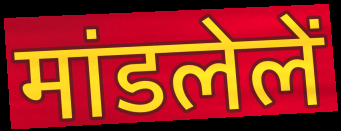
मांडलेलें